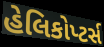
હેલિકોપ્ટર્સ